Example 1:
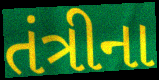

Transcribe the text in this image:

તંત્રીના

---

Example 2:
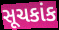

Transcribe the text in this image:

સૂચકાંક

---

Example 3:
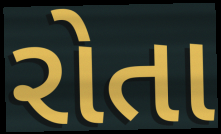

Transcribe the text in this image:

રોતા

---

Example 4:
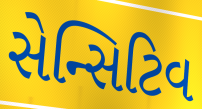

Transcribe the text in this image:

સેન્સિટિવ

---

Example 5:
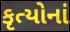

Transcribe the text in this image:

કૃત્યોનાં